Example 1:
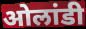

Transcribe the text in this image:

ओलांडी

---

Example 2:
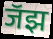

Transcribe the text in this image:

जॅझ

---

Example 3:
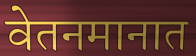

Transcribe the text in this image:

वेतनमानात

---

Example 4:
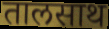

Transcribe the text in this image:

तालसाथ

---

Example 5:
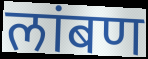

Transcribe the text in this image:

लांबण